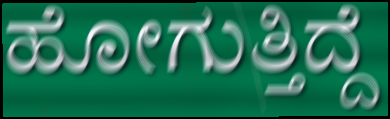
ಹೋಗುತ್ತಿದ್ದೆ